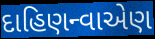
દાહિણન્વાએણ